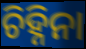
ଚିହ୍ନିନା